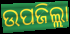
ଉପଜିଲ୍ଲା